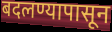
बदलण्यापासून